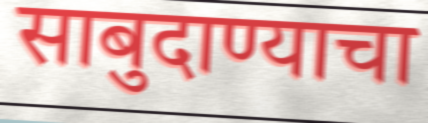
साबुदाण्याचा